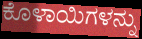
ಕೊಳಾಯಿಗಳನ್ನು